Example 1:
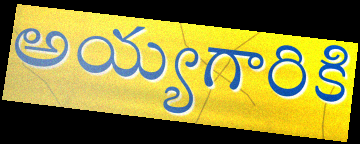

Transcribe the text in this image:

అయ్యగారికి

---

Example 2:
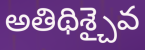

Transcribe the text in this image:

అతిథిశ్చైవ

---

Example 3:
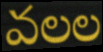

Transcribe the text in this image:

వలల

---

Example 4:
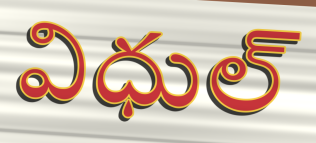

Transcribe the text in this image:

విధుల్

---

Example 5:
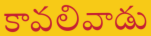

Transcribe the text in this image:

కావలివాడు